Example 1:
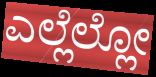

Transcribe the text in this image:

ಎಲ್ಲೆಲ್ಲೋ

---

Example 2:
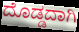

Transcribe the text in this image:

ದೊಡ್ಡದಾಗಿ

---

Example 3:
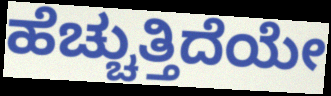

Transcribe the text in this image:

ಹೆಚ್ಚುತ್ತಿದೆಯೇ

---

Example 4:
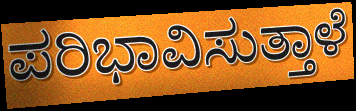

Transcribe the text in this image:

ಪರಿಭಾವಿಸುತ್ತಾಳೆ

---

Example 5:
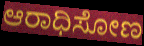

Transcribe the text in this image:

ಆರಾಧಿಸೋಣ